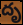
దృ